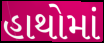
હાથોમાં